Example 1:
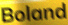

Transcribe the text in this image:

Boland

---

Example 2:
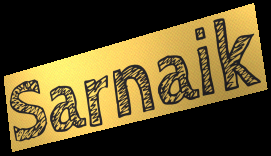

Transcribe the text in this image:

Sarnaik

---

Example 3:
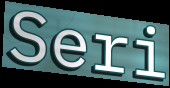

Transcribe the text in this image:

Seri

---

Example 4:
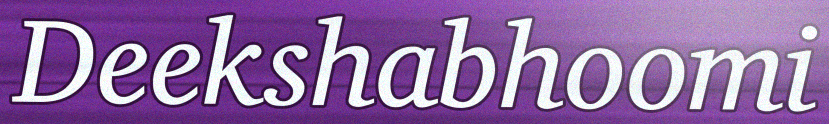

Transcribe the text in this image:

Deekshabhoomi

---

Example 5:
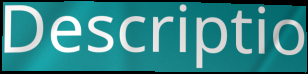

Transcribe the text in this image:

Descriptio